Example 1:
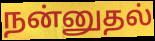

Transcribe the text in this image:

நன்னுதல்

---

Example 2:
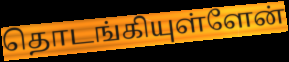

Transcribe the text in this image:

தொடங்கியுள்ளேன்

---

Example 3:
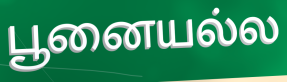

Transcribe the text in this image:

பூனையல்ல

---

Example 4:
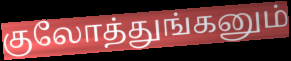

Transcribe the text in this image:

குலோத்துங்கனும்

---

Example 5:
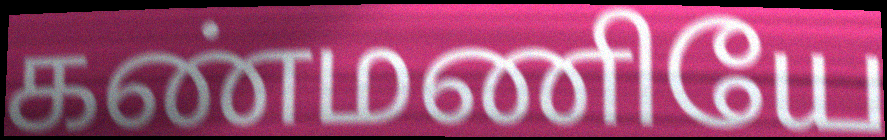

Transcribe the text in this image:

கண்மணியே